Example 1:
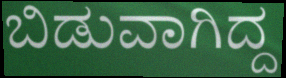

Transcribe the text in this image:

ಬಿಡುವಾಗಿದ್ದ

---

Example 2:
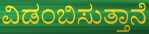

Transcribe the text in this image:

ವಿಡಂಬಿಸುತ್ತಾನೆ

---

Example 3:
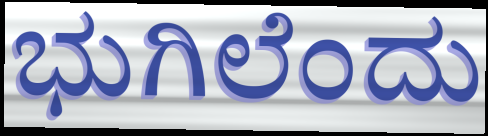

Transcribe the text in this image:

ಭುಗಿಲೆಂದು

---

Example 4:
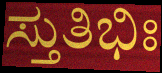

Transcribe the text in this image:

ಸ್ತುತಿಭಿಃ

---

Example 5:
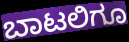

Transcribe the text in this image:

ಬಾಟಲಿಗೂ